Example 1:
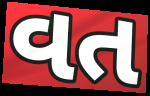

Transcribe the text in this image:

વત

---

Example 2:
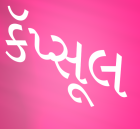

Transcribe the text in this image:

કૅપ્સૂલ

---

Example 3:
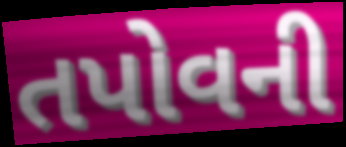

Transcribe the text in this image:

તપોવની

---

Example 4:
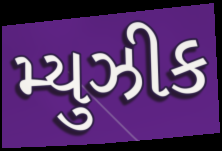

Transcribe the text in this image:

મ્યુઝીક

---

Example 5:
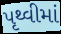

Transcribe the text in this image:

પૃથ્વીમાં